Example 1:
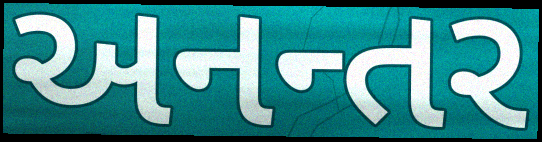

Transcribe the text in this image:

અનન્તર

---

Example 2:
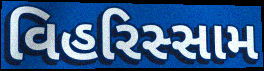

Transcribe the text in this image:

વિહરિસ્સામ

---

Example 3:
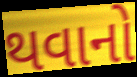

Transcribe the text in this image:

થવાનો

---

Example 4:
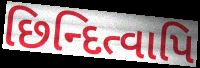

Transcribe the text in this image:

છિન્દિત્વાપિ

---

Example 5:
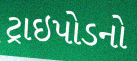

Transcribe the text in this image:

ટ્રાઇપોડનો